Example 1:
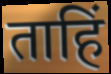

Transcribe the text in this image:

ताहिं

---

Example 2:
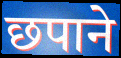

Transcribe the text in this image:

छपाने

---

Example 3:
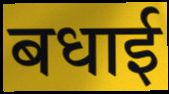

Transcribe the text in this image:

बधाई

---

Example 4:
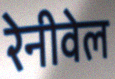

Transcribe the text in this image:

रेनीवेल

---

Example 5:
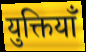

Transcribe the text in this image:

युक्तियाँ